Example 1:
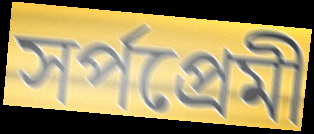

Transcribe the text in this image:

সর্পপ্রেমী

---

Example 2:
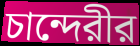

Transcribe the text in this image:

চান্দেরীর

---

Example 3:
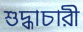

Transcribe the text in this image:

শুদ্ধাচারী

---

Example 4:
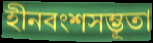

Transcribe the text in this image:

হীনবংশসম্ভূতা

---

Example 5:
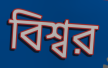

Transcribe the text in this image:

বিশ্বর